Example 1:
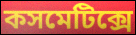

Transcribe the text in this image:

কসমেটিক্সে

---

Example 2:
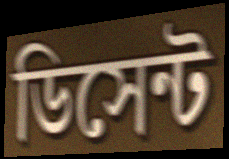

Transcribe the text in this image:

ডিসেন্ট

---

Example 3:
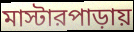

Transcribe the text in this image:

মাস্টারপাড়ায়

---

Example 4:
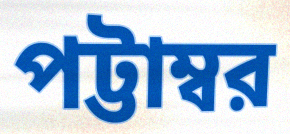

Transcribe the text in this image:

পট্টাম্বর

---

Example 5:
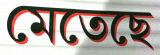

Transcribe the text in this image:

মেতেছে